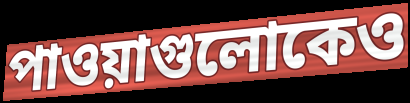
পাওয়াগুলোকেও